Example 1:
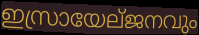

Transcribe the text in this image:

ഇസ്രായേല്ജനവും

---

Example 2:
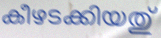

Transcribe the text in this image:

കീഴടക്കിയതു്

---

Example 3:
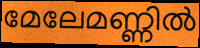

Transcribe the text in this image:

മേലേമണ്ണിൽ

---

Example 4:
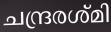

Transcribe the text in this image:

ചന്ദ്രരശ്മി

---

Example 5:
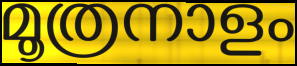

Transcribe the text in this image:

മൂത്രനാളം